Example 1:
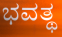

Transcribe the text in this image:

ಭವತ್ಥ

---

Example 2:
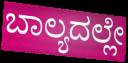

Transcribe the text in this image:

ಬಾಲ್ಯದಲ್ಲೇ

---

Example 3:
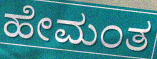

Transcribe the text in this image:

ಹೇಮಂತ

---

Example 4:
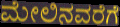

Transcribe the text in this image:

ಮೇಲಿನವರೆಗೆ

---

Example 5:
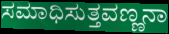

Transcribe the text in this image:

ಸಮಾಧಿಸುತ್ತವಣ್ಣನಾ